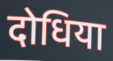
दोधिया